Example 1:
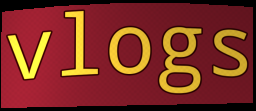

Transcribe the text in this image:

vlogs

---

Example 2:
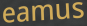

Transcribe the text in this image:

eamus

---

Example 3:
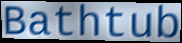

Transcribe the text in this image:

Bathtub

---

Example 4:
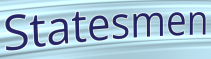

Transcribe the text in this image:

Statesmen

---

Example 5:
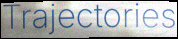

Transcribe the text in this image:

Trajectories